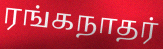
ரங்கநாதர்